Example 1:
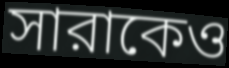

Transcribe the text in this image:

সারাকেও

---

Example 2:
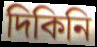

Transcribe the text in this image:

দিকিনি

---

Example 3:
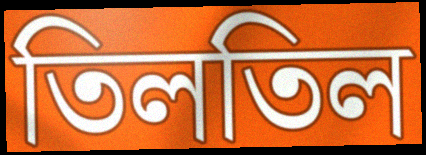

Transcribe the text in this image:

তিলতিল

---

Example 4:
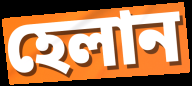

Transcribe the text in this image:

হেলান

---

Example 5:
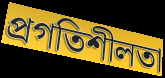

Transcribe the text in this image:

প্রগতিশীলতা